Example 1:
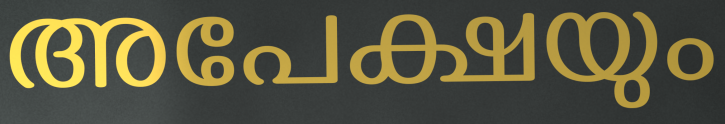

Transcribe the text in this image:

അപേക്ഷയും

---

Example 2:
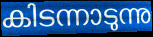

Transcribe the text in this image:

കിടന്നാടുന്നു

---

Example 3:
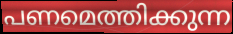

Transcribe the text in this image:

പണമെത്തിക്കുന്ന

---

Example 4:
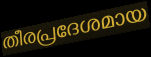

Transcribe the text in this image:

തീരപ്രദേശമായ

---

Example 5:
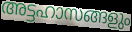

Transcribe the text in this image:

അട്ടഹാസങ്ങളും